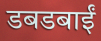
डबडबाईं